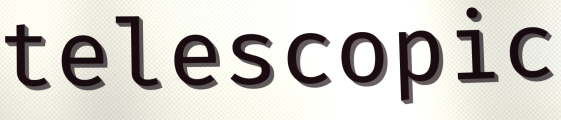
telescopic